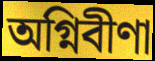
অগ্নিবীণা